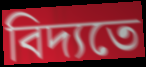
বিদ্যতে